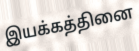
இயக்கத்தினை